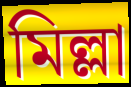
মিল্লা